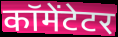
कॉमेंटेटर